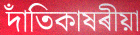
দাঁতিকাষৰীয়া